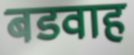
बडवाह